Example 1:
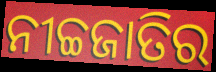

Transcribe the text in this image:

ନୀଚ୍ଚଜାତିର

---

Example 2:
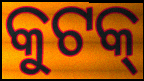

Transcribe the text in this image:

କୁଟକ୍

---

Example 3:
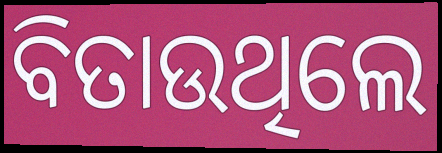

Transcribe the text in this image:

ବିତାଉଥିଲେ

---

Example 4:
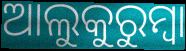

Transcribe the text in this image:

ଆଲୁକୁରୁମ୍ବା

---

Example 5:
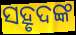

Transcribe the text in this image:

ସହୃଦଙ୍କ